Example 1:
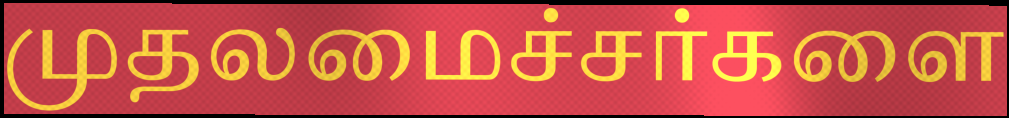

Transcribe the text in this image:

முதலமைச்சர்களை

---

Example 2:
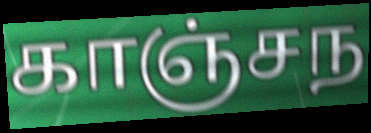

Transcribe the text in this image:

காஞ்சந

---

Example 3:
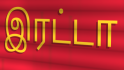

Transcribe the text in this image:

இரட்டா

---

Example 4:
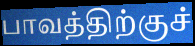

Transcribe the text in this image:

பாவத்திற்குச்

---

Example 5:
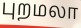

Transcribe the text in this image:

புறமலா